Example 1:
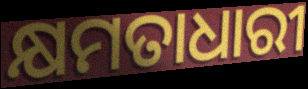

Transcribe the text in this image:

କ୍ଷମତାଧାରୀ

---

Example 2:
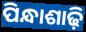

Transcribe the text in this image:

ପିନ୍ଧାଶାଢ଼ି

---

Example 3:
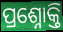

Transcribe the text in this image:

ପ୍ରଶ୍ନୋକ୍ତି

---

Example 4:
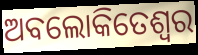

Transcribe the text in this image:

ଅବଲୋକିତେଶ୍ୱର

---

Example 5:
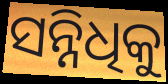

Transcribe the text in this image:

ସନ୍ନିଧିକୁ